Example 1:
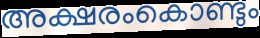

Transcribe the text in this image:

അക്ഷരംകൊണ്ടും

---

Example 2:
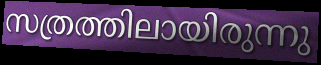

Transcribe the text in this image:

സത്രത്തിലായിരുന്നു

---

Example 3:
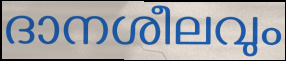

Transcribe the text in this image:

ദാനശീലവും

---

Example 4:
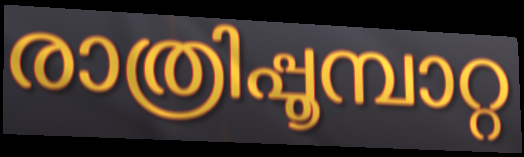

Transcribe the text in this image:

രാത്രിപ്പൂമ്പാറ്റ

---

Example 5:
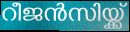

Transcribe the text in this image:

റീജൻസിയ്ക്ക്